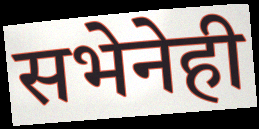
सभेनेही